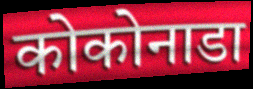
कोकोनाडा